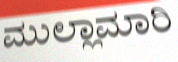
ಮುಲ್ಲಾಮಾರಿ